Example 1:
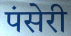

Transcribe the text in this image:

पंसेरी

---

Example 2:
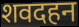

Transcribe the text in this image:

शवदहन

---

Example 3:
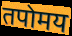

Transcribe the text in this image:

तपोमय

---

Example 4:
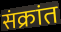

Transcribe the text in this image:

संक्रांत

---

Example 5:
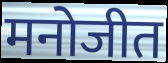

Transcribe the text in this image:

मनोजीत